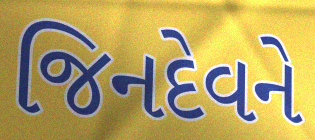
જિનદેવને